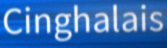
Cinghalais